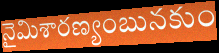
నైమిశారణ్యంబునకుం